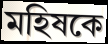
মহিষকে